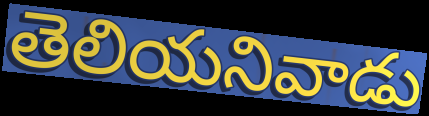
తెలియనివాడు